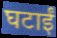
घटाईं